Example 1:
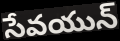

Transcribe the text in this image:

సేవయున్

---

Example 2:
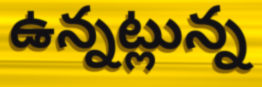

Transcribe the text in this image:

ఉన్నట్లున్న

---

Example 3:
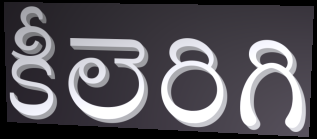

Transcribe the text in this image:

కీలెరిగి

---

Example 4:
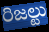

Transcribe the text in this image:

రిజల్టు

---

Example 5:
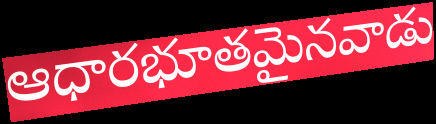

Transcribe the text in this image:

ఆధారభూతమైనవాడు